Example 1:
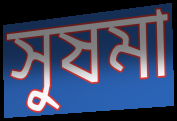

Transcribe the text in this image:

সুষমা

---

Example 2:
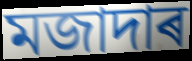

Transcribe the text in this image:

মজাদাৰ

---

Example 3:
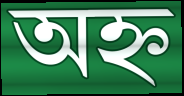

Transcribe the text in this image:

অহ্ন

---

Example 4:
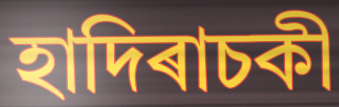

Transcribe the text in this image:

হাদিৰাচকী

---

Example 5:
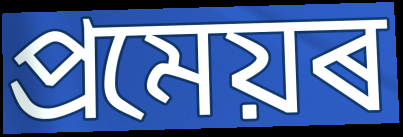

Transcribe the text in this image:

প্ৰমেয়ৰ